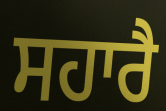
ਸਹਾਰੈ